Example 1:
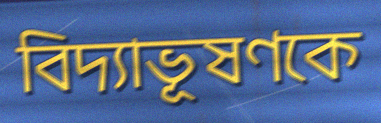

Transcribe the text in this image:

বিদ্যাভূষণকে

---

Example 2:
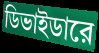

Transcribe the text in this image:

ডিভাইডারে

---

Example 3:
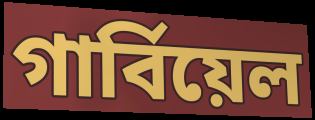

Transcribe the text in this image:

গার্বিয়েল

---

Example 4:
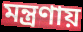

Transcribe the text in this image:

মন্ত্রণায়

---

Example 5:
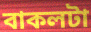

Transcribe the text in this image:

বাকলটা